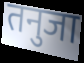
तनुजा